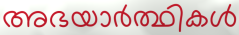
അഭയാർത്ഥികൾ